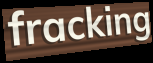
fracking